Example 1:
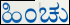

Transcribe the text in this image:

ಹಿಂಚು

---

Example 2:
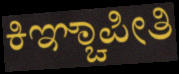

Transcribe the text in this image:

ಕಿಞ್ಚಾಪೀತಿ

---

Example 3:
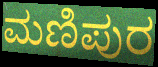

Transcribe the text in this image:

ಮಣಿಪುರ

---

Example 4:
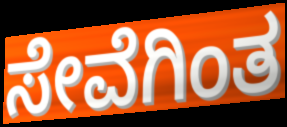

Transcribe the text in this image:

ಸೇವೆಗಿಂತ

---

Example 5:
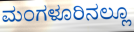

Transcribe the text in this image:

ಮಂಗಳೂರಿನಲ್ಲೂ